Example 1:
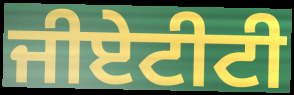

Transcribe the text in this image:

ਜੀਏਟੀਟੀ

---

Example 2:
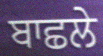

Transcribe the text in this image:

ਬਾਛਲੇ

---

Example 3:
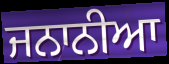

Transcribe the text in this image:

ਜਨਾਨੀਆ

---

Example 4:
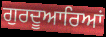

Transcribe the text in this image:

ਗੁਰਦੂਆਰਿਆਂ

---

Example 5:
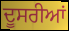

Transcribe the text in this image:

ਦੂਸਰੀਆਂ